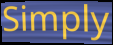
Simply